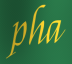
pha